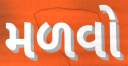
મળવો